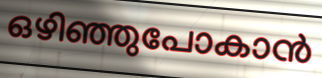
ഒഴിഞ്ഞുപോകാൻ